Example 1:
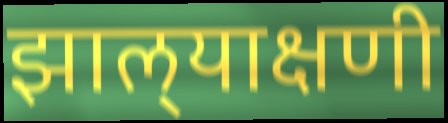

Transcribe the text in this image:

झाल्याक्षणी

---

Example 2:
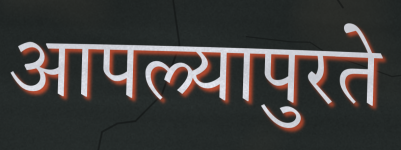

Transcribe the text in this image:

आपल्यापुरते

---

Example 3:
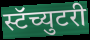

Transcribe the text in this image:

स्टॅच्युटरी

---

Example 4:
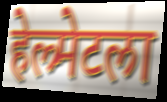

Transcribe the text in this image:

हेल्मेटला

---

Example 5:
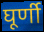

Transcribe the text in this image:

घूर्णी